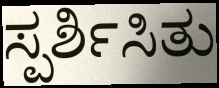
ಸ್ಪರ್ಶಿಸಿತು